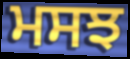
ਮਸਝ